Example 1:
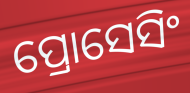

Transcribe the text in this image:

ପ୍ରୋସେସିଂ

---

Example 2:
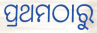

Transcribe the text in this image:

ପ୍ରଥମଠାରୁ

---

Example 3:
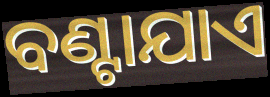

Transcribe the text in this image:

ବଣ୍ଟାଯାଏ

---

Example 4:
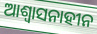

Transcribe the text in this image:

ଆଶ୍ୱାସନାହୀନ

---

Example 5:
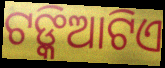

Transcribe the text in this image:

ଟଙ୍କିଆଟିଏ